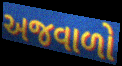
અજવાળો